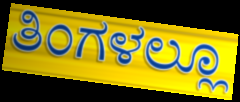
ತಿಂಗಳಲ್ಲೂ